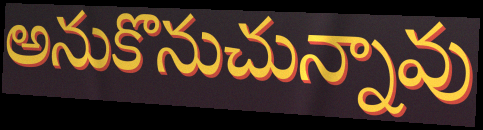
అనుకొనుచున్నావు